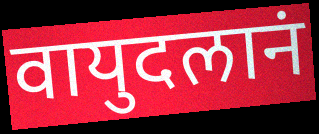
वायुदलानं